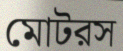
মোটরস